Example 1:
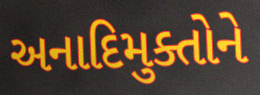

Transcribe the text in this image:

અનાદિમુક્તોને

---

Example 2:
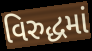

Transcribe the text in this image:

વિરુદ્ધમાં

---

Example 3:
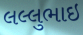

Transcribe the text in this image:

લલ્લુભાઇ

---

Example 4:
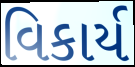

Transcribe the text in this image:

વિકાર્ય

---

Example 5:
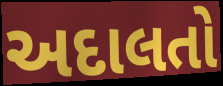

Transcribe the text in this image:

અદાલતો